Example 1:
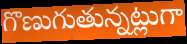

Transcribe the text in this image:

గొణుగుతున్నట్లుగా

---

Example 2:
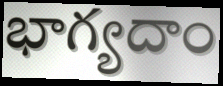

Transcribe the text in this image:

భాగ్యదాం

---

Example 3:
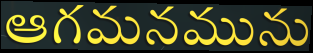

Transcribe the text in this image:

ఆగమనమును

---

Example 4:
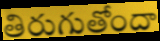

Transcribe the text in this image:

తిరుగుతోందా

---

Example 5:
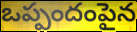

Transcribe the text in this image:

ఒప్పందంపైన